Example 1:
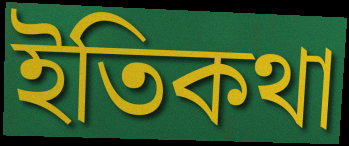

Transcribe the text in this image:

ইতিকথা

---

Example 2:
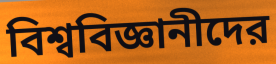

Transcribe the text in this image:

বিশ্ববিজ্ঞানীদের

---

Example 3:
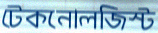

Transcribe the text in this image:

টেকনোলজিস্ট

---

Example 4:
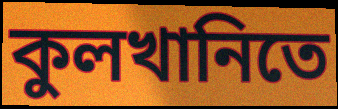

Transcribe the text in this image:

কুলখানিতে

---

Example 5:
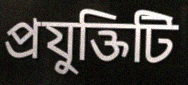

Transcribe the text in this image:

প্রযুক্তিটি